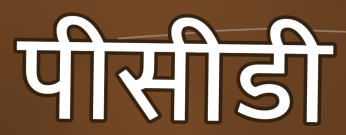
पीसीडी